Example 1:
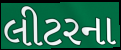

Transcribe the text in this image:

લીટરના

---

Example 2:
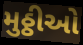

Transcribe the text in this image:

મુઠ્ઠીઓ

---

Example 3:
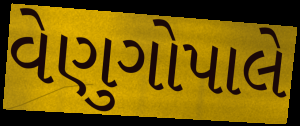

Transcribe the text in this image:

વેણુગોપાલે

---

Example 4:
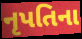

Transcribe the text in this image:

નૃપતિના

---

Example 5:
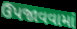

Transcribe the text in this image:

ઉપજાવવામાં